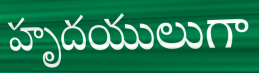
హృదయులుగా